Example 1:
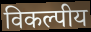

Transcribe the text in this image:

विकल्पीय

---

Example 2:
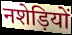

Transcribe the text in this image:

नशेड़ियों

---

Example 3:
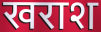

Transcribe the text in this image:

खराश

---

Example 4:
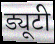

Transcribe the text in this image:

ड्यूटी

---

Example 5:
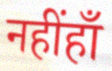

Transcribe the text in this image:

नहींहाँ